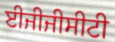
ਈਜੀਜੀਸੀਟੀ